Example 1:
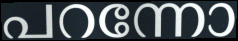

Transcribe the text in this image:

പറന്നോ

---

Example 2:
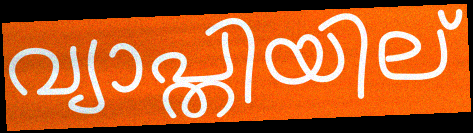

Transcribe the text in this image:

വ്യാപ്തിയില്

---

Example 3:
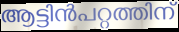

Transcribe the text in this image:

ആട്ടിൻപറ്റത്തിന്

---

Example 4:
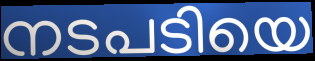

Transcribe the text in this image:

നടപടിയെ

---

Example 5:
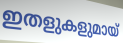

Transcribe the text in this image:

ഇതളുകളുമായ്